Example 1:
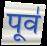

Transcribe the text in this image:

पूव॑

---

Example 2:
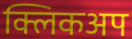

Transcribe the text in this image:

क्लिकअप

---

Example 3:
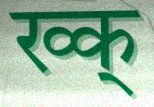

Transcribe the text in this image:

ख्क्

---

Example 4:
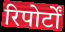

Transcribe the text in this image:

रिपोर्टों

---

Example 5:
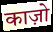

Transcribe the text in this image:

काज़ो